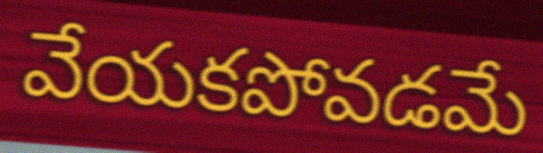
వేయకపోవడమే